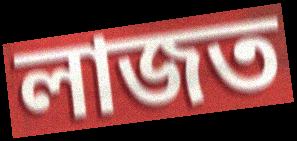
লাজত